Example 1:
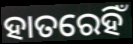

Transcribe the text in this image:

ହାତରେହିଁ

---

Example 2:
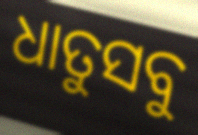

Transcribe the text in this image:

ଧାତୁସବୁ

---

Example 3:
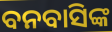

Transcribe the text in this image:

ବନବାସିଙ୍କ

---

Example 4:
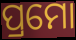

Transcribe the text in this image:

ପ୍ରମୋ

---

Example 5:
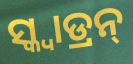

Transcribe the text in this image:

ସ୍କ୍ୱାଡ୍ରନ୍